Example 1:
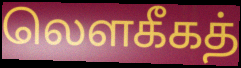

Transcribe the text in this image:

லௌகீகத்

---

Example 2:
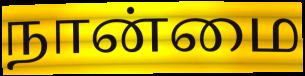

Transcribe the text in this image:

நான்மை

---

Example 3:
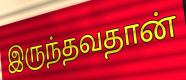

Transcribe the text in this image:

இருந்தவதான்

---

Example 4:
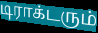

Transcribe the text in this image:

டிராக்டரும்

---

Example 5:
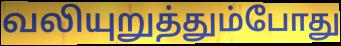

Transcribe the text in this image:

வலியுறுத்தும்போது